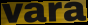
vara